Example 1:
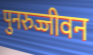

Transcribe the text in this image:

पुनरुज्जीवन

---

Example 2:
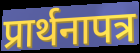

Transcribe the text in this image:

प्रार्थनापत्र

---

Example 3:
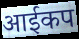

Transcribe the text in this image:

आईकप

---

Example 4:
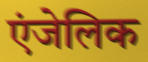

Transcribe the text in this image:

एंजेलिक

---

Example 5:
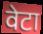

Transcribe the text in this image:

वेटा